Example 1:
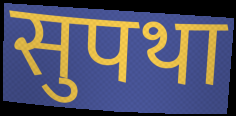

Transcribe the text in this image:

सुपथा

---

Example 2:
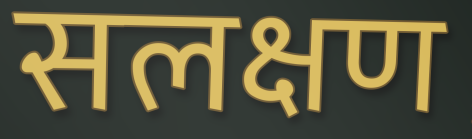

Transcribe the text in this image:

सलक्षण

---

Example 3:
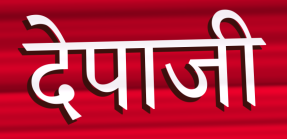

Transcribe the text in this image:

देपाजी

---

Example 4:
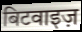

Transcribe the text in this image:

बिटवाइज़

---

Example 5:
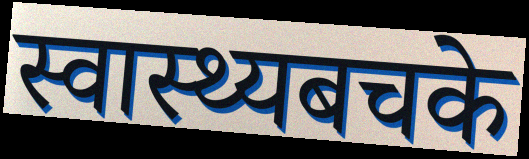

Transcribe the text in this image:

स्वास्थ्यबचके